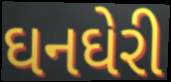
ઘનઘેરી